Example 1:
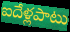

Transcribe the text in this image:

ఐదేళ్లపాటు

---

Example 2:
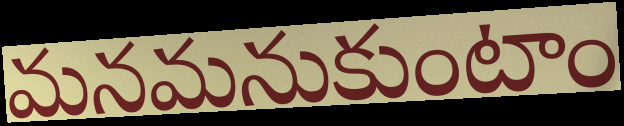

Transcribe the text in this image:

మనమనుకుంటాం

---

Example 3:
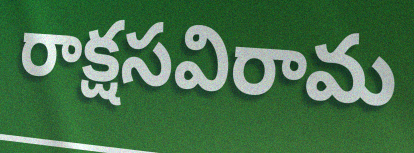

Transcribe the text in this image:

రాక్షసవిరామ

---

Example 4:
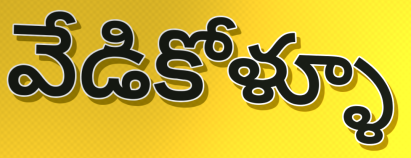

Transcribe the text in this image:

వేడికోళ్ళూ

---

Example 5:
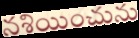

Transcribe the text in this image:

నశియించును